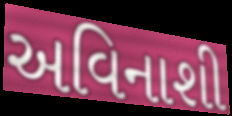
અવિનાશી